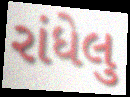
રાંધેલુ